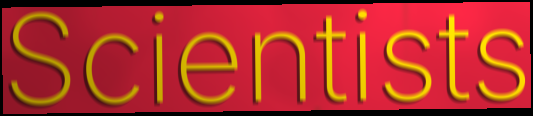
Scientists